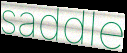
saddle